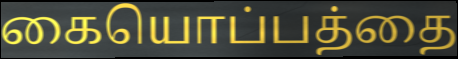
கையொப்பத்தை